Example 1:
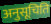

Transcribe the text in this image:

अनुसूचिति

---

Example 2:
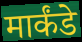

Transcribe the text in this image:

मार्कंडे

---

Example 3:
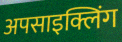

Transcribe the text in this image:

अपसाइक्लिंग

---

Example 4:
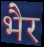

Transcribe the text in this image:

भैर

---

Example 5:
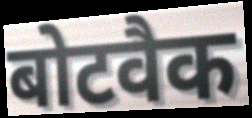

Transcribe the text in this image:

बोटवैक